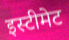
इस्टीमेट